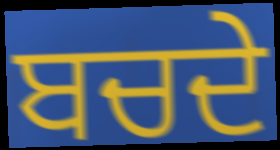
ਬਚਦੇ